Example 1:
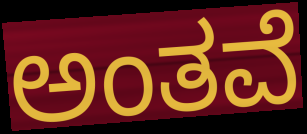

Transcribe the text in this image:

ಅಂತವೆ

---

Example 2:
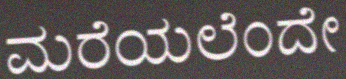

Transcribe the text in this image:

ಮರೆಯಲೆಂದೇ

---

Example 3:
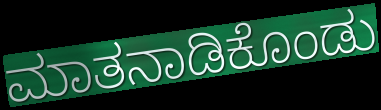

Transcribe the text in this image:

ಮಾತನಾಡಿಕೊಂಡು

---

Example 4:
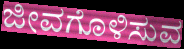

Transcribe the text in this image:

ಜೀವಗೊಳಿಸುವ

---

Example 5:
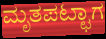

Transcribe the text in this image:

ಮೃತಪಟ್ಟಾಗ